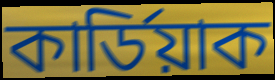
কাৰ্ডিয়াক